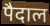
पैदाल